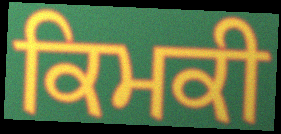
ਕਿਮਕੀ